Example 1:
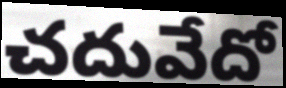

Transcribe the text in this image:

చదువేదో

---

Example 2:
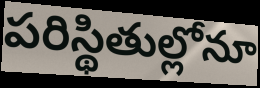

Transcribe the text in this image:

పరిస్థితుల్లోనూ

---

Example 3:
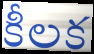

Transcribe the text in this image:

కీలక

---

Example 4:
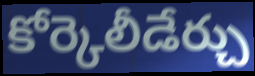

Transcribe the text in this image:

కోర్కెలీడేర్చు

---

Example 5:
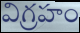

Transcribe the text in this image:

విగ్రహం